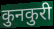
कुनकुरी